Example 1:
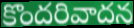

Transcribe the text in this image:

కొందరివాదన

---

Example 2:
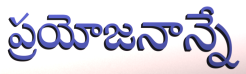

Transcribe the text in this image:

ప్రయోజనాన్నే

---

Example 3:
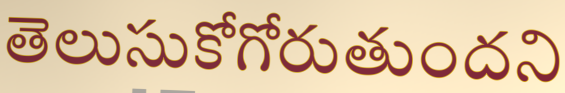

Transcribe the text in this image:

తెలుసుకోగోరుతుందని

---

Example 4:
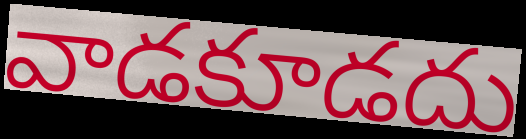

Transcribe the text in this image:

వాడకూడదు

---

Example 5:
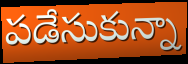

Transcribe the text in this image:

పడేసుకున్నా